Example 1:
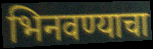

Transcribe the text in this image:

भिनवण्याचा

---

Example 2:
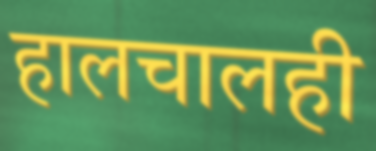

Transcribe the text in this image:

हालचालही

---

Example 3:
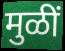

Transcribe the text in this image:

मुळीं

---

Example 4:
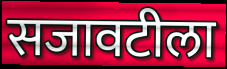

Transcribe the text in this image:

सजावटीला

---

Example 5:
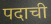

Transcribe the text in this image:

पदाची